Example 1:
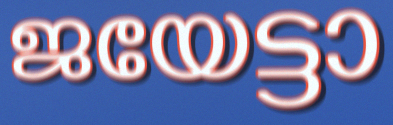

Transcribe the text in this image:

ജയേട്ടാ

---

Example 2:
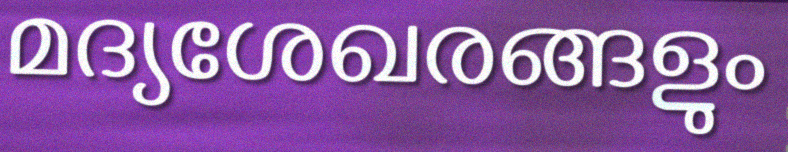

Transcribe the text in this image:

മദ്യശേഖരങ്ങളും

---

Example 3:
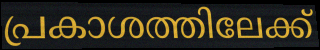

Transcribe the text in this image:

പ്രകാശത്തിലേക്ക്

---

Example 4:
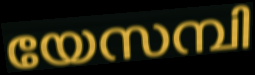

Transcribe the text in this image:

യേസമ്പി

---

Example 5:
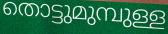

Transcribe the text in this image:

തൊട്ടുമുമ്പുള്ള